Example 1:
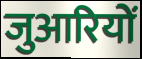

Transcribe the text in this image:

जुआरियों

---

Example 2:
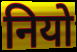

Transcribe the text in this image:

नियो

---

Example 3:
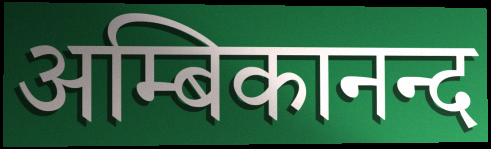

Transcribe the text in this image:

अम्बिकानन्द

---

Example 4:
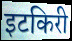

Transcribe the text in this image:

इटकिरी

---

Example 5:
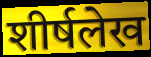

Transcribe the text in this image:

शीर्षलेख